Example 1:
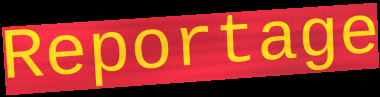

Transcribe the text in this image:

Reportage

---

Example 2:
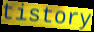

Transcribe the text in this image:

tistory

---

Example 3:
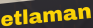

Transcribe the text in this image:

etlaman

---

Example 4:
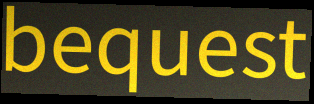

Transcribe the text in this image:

bequest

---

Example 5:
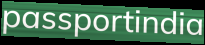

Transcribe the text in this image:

passportindia